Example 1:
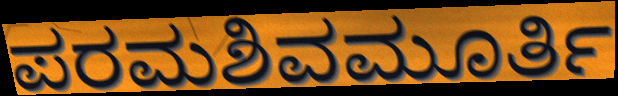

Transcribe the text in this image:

ಪರಮಶಿವಮೂರ್ತಿ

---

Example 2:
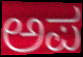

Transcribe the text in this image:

ಅಪ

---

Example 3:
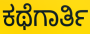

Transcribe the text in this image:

ಕಥೆಗಾರ್ತಿ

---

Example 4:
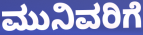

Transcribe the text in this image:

ಮುನಿವರಿಗೆ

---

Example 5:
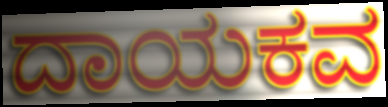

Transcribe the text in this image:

ದಾಯಕವ